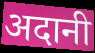
अदानी